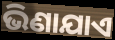
ଭିଣାଯାଏ